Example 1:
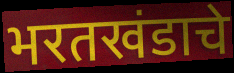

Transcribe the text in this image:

भरतखंडाचे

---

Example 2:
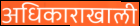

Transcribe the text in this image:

अधिकाराखाली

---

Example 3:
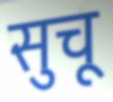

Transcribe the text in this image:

सुचू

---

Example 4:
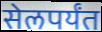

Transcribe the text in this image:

सेलपर्यंत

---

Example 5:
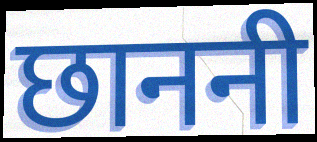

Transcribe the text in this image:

छाननी